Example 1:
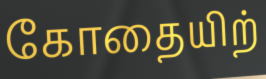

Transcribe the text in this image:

கோதையிற்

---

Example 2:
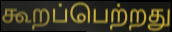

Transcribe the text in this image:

கூறப்பெற்றது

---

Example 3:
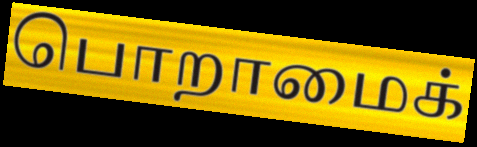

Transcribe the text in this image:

பொறாமைக்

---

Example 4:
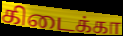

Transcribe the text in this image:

கிடைக்கா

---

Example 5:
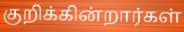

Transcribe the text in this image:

குறிக்கின்றார்கள்